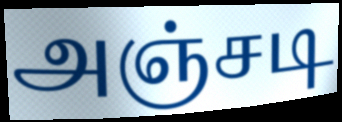
அஞ்சடி